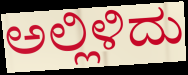
ಅಲ್ಲಿಳಿದು